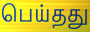
பெய்தது